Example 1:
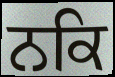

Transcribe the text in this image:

ਨਕਿ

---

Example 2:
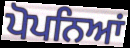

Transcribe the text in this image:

ਪੋਪਨਿਆਂ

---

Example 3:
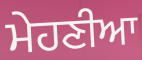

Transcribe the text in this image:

ਮੇਹਣੀਆ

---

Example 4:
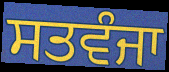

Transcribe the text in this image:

ਸਤਵੰਜਾ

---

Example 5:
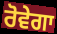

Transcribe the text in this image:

ਰੋਵੇਗਾ